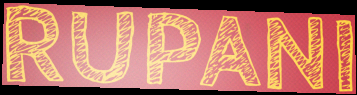
RUPANI